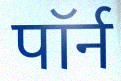
पॉर्न